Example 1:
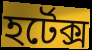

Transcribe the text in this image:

হর্টেক্স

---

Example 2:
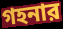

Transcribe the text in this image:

গহনার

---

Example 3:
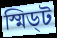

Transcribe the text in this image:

স্মিড্ট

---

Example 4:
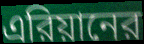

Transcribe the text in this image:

এরিয়ানের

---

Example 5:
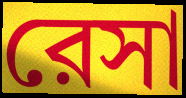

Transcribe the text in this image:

রেসা